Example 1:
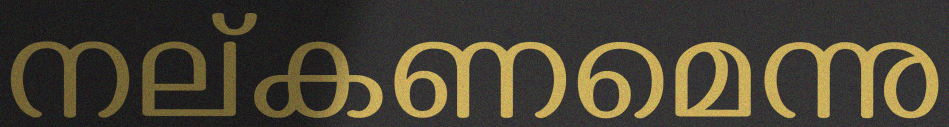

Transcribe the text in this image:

നല്‌കണമെന്നു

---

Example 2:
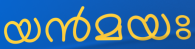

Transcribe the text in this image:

യൻമയഃ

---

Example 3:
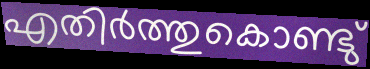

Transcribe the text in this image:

എതിർത്തുകൊണ്ടു്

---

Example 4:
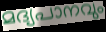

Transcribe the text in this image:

മദ്യപാനവും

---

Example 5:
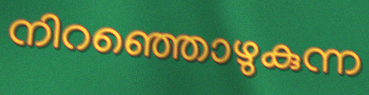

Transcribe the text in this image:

നിറഞ്ഞൊഴുകുന്ന